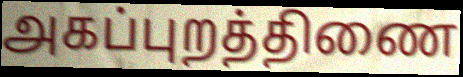
அகப்புறத்திணை